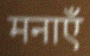
मनाएँ